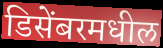
डिसेंबरमधील